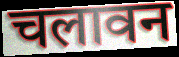
चलावन